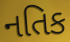
નતિક